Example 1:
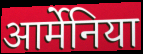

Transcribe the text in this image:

आर्मेनिया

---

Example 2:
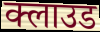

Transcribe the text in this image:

क्लाउड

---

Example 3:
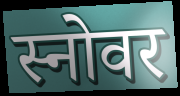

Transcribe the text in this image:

स्नोवर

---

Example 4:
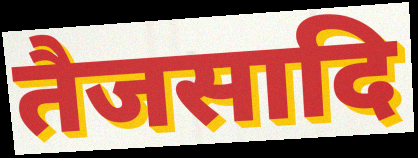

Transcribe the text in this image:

तैजसादि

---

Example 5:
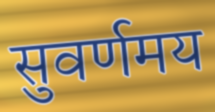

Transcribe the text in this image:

सुवर्णमय